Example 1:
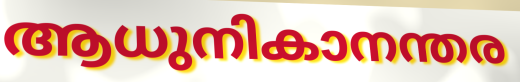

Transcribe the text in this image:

ആധുനികാനന്തര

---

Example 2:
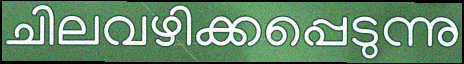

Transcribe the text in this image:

ചിലവഴിക്കപ്പെടുന്നു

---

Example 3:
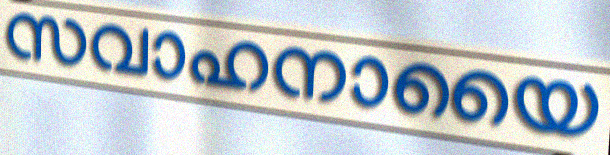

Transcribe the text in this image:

സവാഹനായൈ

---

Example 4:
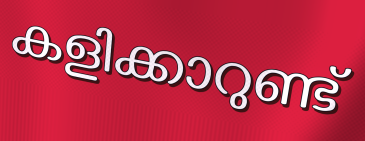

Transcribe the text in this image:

കളിക്കാറുണ്ട്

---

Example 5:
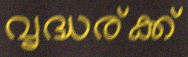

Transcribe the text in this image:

വൃദ്ധര്ക്ക്